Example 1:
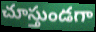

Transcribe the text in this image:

చూస్తుండగా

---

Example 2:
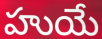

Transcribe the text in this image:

హుయే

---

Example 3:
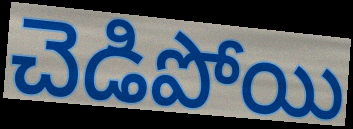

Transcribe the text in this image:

చెడిపోయి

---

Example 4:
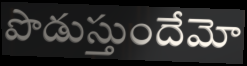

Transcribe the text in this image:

పొడుస్తుందేమో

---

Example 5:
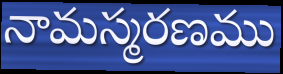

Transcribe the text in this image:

నామస్మరణము